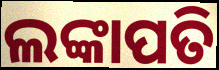
ଲଙ୍କାପତି